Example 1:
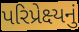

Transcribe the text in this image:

પરિપ્રેક્ષ્યનું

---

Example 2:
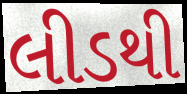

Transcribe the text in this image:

લીડથી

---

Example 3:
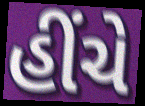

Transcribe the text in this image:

હીંચે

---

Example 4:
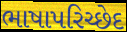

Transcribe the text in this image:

ભાષાપરિચ્છેદ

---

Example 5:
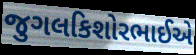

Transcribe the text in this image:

જુગલકિશોરભાઈએ